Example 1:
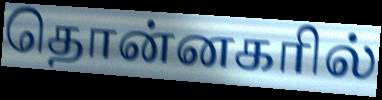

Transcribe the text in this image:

தொன்னகரில்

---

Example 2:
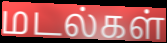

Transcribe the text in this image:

மடல்கள்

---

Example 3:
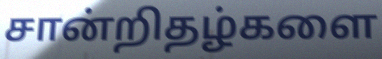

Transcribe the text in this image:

சான்றிதழ்களை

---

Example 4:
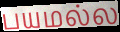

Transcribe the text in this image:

பயமல்ல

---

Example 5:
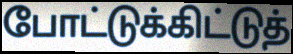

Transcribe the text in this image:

போட்டுக்கிட்டுத்